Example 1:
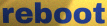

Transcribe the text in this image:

reboot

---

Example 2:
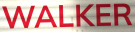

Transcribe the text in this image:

WALKER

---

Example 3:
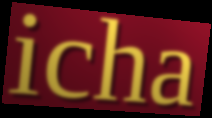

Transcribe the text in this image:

icha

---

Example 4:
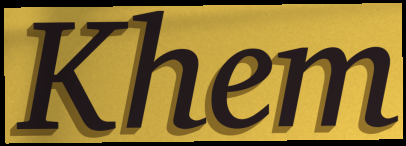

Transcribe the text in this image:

Khem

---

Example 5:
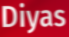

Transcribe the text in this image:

Diyas